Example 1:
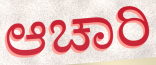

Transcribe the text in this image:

ಆಚಾರಿ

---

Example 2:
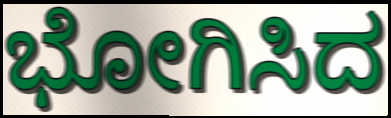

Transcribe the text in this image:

ಭೋಗಿಸಿದ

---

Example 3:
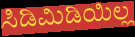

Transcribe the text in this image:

ಸಿಡಿಮಿಡಿಯಿಲ್ಲ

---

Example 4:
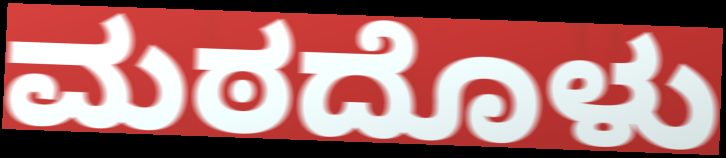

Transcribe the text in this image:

ಮಠದೊಳು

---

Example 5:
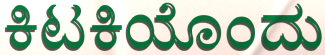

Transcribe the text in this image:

ಕಿಟಕಿಯೊಂದು